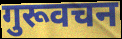
गुरूवचन